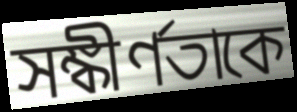
সঙ্কীর্ণতাকে